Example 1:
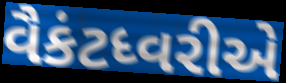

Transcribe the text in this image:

વૈકંટધ્વરીએ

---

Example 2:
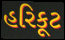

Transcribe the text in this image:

હરિકૂટ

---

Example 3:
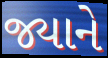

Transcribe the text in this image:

જ્યાને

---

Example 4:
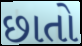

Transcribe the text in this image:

છાતો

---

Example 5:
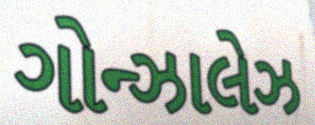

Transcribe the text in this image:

ગોન્ઝાલેઝ